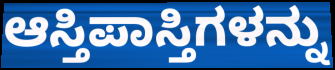
ಆಸ್ತಿಪಾಸ್ತಿಗಳನ್ನು